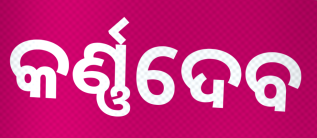
କର୍ଣ୍ଣଦେବ